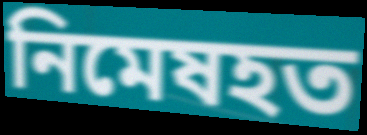
নিমেষহত